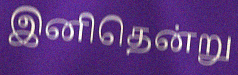
இனிதென்று